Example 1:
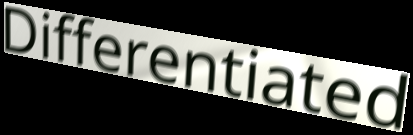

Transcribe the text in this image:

Differentiated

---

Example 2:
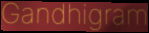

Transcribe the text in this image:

Gandhigram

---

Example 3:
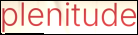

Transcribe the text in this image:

plenitude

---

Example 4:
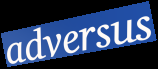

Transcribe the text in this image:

adversus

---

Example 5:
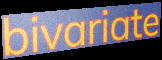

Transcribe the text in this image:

bivariate